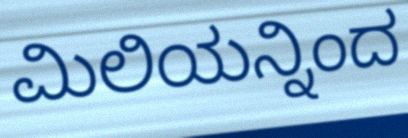
ಮಿಲಿಯನ್ನಿಂದ